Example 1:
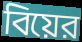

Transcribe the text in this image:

বিয়ের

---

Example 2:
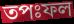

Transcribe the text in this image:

তপঃফল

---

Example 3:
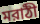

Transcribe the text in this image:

মরাঠী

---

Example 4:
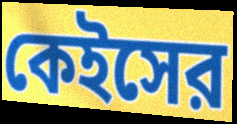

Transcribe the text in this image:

কেইসের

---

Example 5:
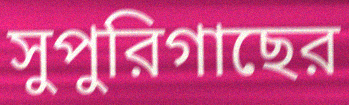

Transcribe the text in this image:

সুপুরিগাছের